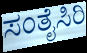
ಸಂತೈಸಿರಿ